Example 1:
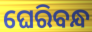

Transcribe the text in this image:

ଘେରିବନ୍ଧ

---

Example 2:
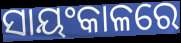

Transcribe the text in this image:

ସାୟଂକାଳରେ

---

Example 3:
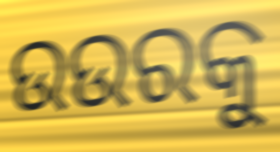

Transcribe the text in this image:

ଉଉରକୁ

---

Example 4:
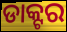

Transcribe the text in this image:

ଡାକ୍ଟର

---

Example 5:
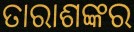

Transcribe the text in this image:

ତାରାଶଙ୍କର